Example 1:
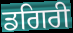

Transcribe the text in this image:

ਡਗਿਰੀ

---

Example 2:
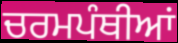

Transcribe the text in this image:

ਚਰਮਪੰਥੀਆਂ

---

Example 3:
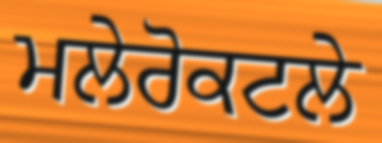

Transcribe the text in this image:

ਮਲੇਰੋਕਟਲੇ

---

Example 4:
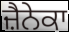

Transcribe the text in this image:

ਜ਼ੈਨੇਕਾ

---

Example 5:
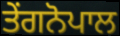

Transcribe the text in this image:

ਤੇਂਗਨੋਪਾਲ